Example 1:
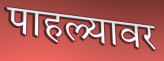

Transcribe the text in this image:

पाहल्यावर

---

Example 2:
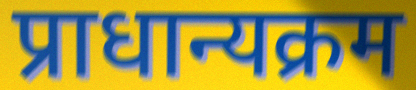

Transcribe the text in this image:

प्राधान्यक्रम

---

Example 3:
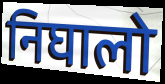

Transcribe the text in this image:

निघालो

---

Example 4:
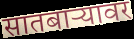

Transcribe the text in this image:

सातबाऱ्यावर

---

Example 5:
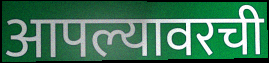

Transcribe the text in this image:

आपल्यावरची